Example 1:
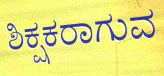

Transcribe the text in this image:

ಶಿಕ್ಷಕರಾಗುವ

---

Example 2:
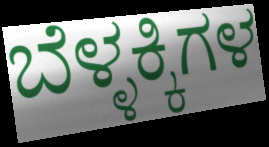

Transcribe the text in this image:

ಬೆಳ್ಳಕ್ಕಿಗಳ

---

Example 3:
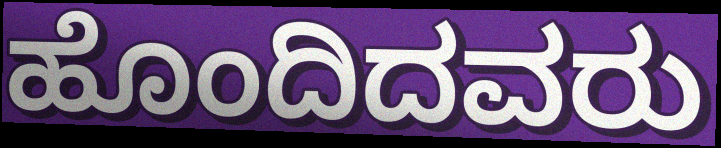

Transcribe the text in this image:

ಹೊಂದಿದವರು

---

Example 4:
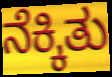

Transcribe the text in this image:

ನೆಕ್ಕಿತು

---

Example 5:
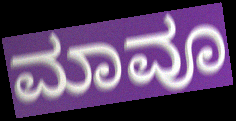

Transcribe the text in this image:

ಮಾವೂ